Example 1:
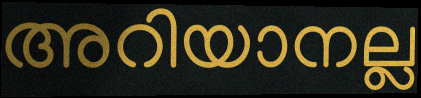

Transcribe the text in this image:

അറിയാനല്ല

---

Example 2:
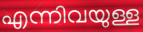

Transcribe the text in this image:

എന്നിവയുള്ള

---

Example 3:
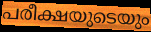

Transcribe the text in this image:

പരീക്ഷയുടെയും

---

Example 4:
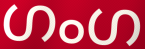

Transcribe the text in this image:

ഗംഗ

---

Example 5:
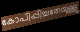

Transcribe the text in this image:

കോപിപ്പിച്ചതേയുള്ളു